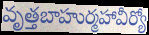
వృత్తబాహుర్మహావీర్యో